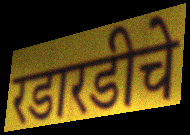
रडारडीचे